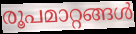
രൂപമാറ്റങ്ങൾ